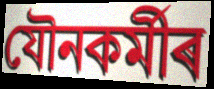
যৌনকৰ্মীৰ